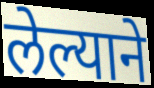
लेल्याने